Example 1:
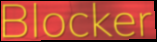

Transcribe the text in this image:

Blocker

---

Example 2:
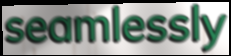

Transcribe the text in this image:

seamlessly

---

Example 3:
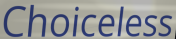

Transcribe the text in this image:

Choiceless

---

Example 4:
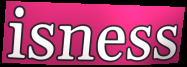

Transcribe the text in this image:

isness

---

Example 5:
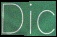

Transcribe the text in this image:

Dic